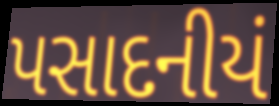
પસાદનીયં